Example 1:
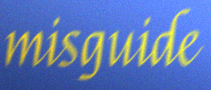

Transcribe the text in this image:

misguide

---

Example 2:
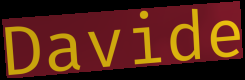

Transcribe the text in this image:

Davide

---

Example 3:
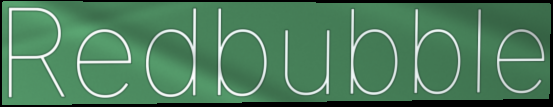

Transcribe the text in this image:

Redbubble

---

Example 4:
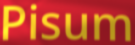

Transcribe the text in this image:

Pisum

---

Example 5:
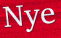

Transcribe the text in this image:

Nye